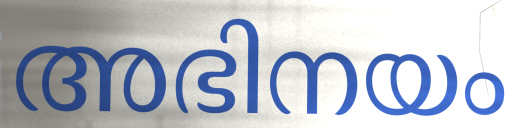
അഭിനയം